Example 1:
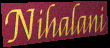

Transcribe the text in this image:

Nihalani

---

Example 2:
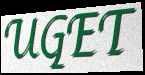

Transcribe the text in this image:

UGET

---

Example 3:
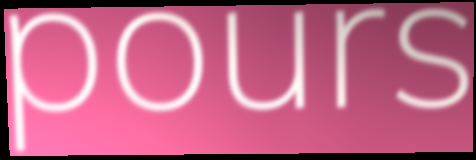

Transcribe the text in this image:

pours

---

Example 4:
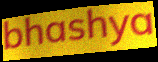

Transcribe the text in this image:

bhashya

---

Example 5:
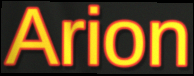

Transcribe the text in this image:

Arion